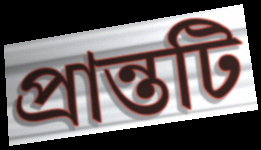
প্রান্তটি